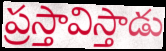
ప్రస్తావిస్తాడు